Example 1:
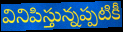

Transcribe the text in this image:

వినిపిస్తున్నప్పటికీ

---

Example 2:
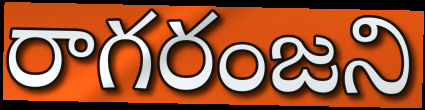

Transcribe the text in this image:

రాగరంజని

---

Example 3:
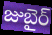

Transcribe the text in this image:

జుబైర్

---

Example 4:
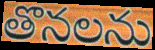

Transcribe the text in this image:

తొనలను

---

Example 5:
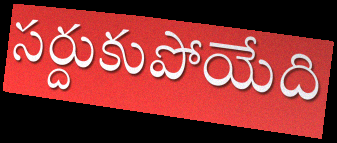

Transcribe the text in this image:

సర్దుకుపోయేది